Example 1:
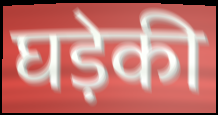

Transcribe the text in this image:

घड़ेकी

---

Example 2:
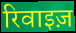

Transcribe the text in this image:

रिवाइज़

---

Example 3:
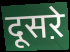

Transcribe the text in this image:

दूसऱे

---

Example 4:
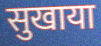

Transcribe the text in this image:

सुखाया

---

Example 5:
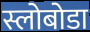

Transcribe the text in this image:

स्लोबोडा